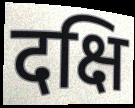
दक्षि